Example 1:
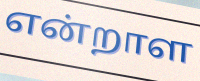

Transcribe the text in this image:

என்றாள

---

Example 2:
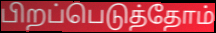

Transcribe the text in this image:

பிறப்பெடுத்தோம்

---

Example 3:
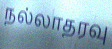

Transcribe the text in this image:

நல்லாதரவு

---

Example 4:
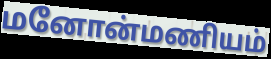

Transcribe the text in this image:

மனோன்மணியம்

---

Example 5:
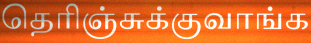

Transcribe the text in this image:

தெரிஞ்சுக்குவாங்க